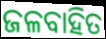
ଜଳବାହିତ